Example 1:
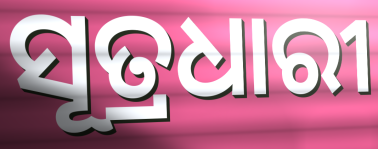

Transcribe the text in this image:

ସୂତ୍ରଧାରୀ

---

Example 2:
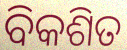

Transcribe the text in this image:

ବିକଶିତ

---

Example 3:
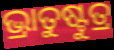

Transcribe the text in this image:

ଭ୍ରାତୁଷ୍ଟୁତ୍ର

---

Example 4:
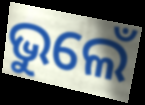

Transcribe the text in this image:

ଭୁଲେଁ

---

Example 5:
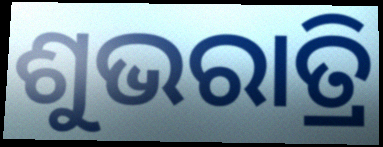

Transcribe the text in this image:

ଶୁଭରାତ୍ରି